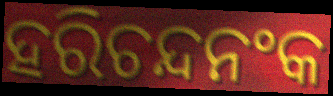
ହରିଚନ୍ଦନଂକ